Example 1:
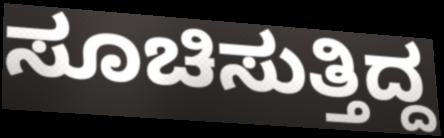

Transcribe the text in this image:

ಸೂಚಿಸುತ್ತಿದ್ದ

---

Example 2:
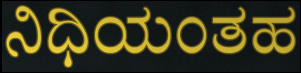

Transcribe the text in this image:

ನಿಧಿಯಂತಹ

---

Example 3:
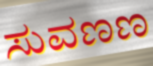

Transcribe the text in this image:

ಸುವಣಣ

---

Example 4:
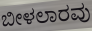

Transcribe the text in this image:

ಬೀಳಲಾರವು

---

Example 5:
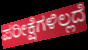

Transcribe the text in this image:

ಪರೀಕ್ಷೆಗಳಿಲ್ಲದೆ